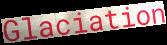
Glaciation